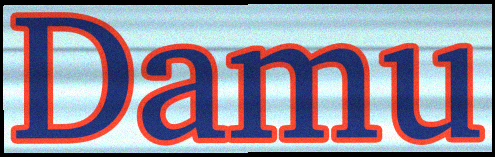
Damu